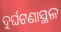
ଦୁର୍ଘଟଣାସ୍ଥଳ